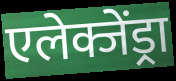
एलेक्जेंड्रा